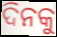
ଦିନକୁ